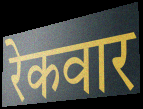
रेकवार